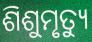
ଶିଶୁମୃତ୍ୟୁ